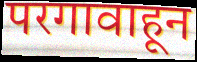
परगावाहून